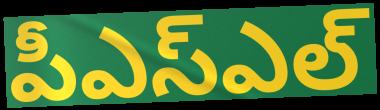
పీఎస్ఎల్